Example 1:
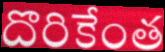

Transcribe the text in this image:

దొరికేంత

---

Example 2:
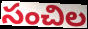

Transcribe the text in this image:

సంచిల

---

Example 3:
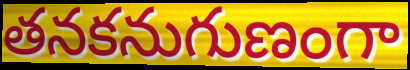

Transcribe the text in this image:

తనకనుగుణంగా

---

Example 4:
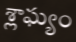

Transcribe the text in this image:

శ్లాఘ్యం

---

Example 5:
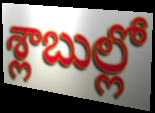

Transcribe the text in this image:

శ్లాబుల్లో